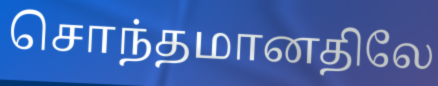
சொந்தமானதிலே